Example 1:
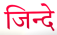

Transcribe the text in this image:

जिन्दे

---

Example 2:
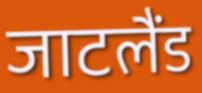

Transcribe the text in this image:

जाटलैंड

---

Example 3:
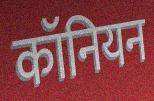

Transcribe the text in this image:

कॉनियन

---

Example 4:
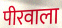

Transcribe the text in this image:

पीरवाला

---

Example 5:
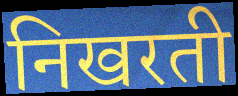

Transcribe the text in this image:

निखरती